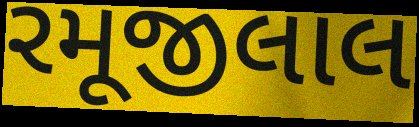
રમૂજીલાલ